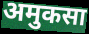
अमुकसा